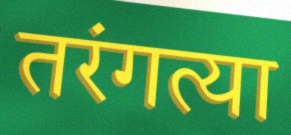
तरंगत्या